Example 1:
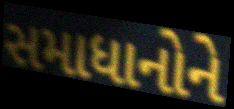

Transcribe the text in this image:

સમાધાનોને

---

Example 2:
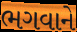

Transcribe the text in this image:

ભગવાને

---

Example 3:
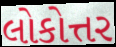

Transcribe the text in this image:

લોકોત્તર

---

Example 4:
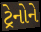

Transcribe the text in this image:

ટ્રેનોને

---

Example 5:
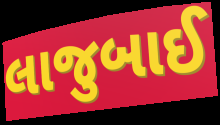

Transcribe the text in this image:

લાજુબાઈ